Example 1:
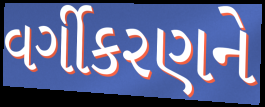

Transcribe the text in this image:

વર્ગીકરણને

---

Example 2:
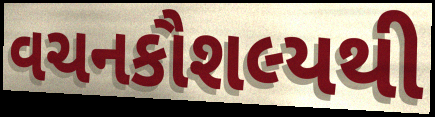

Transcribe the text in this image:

વચનકૌશલ્યથી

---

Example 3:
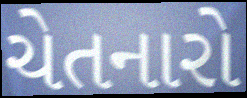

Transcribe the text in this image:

ચેતનારો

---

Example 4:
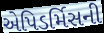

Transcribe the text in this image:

એપિડર્મિસની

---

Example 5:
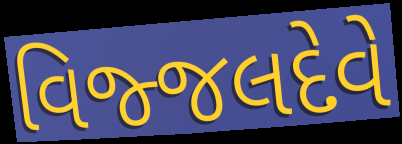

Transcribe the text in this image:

વિજ્જલદેવે